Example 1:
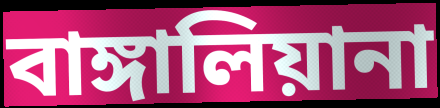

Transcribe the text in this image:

বাঙ্গালিয়ানা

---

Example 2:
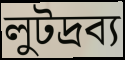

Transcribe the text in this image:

লুটদ্রব্য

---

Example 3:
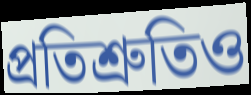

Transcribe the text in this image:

প্রতিশ্রুতিও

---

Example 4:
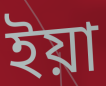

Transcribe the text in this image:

ইয়া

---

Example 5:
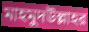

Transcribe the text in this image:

মাহমুদউল্লাহর